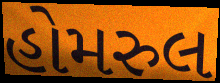
હોમરુલ